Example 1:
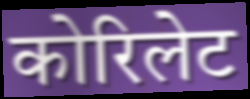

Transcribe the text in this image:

कोरिलेट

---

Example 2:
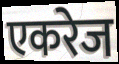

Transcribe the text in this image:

एकरेज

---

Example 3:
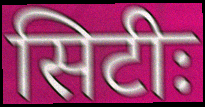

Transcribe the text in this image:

सिटीः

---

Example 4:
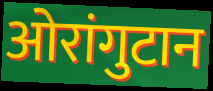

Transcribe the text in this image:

ओरांगुटान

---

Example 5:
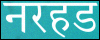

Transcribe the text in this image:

नरहड